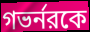
গভর্নরকে